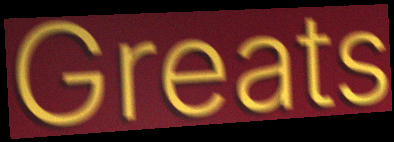
Greats